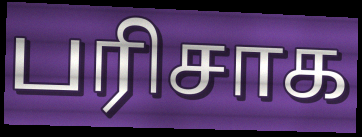
பரிசாக